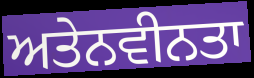
ਅਤੇਨਵੀਨਤਾ